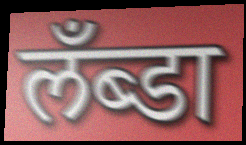
लँब्डा